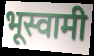
भूस्‍वामी